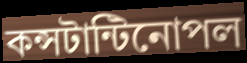
কন্সটান্টিনোপল